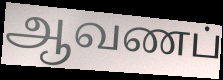
ஆவணப்